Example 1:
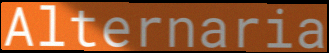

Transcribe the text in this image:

Alternaria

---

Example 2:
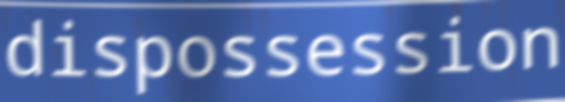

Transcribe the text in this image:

dispossession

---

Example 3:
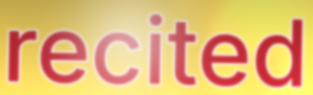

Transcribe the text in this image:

recited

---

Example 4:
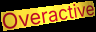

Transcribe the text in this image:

Overactive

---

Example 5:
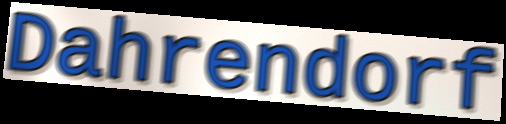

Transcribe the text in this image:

Dahrendorf